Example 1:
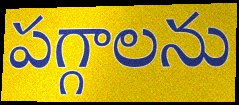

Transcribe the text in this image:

పగ్గాలను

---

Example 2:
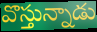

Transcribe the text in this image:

వొస్తున్నాడు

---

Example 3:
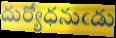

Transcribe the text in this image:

దుర్యోధనుఁడు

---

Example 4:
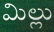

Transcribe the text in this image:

మిల్లు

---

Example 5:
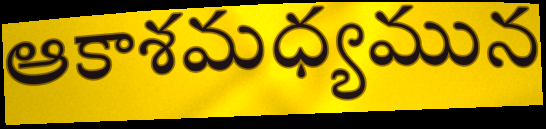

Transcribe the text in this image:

ఆకాశమధ్యమున